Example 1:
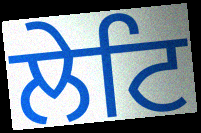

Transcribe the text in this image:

ਲੇਟਿ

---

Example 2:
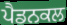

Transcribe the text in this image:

ਪੈਡਨਕਲ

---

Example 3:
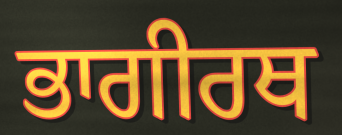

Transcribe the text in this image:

ਭਾਗੀਰਥ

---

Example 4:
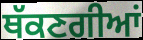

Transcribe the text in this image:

ਥੱਕਣਗੀਆਂ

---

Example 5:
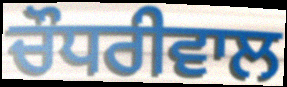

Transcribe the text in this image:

ਚੌਧਰੀਵਾਲ